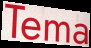
Tema